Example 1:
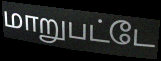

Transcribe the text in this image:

மாறுபட்டே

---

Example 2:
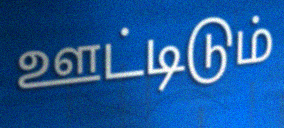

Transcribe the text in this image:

ஊட்டிடும்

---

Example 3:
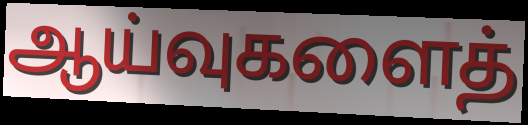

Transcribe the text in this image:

ஆய்வுகளைத்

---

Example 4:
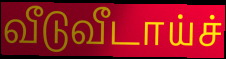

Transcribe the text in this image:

வீடுவீடாய்ச்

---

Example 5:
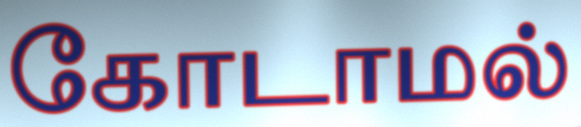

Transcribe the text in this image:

கோடாமல்